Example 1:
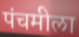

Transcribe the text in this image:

पंचमीला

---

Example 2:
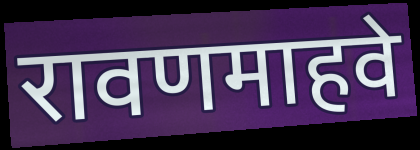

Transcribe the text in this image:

रावणमाहवे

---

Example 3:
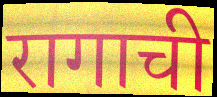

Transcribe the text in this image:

रागाची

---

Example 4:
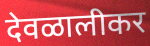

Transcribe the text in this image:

देवळालीकर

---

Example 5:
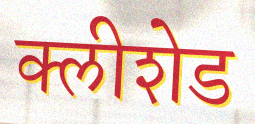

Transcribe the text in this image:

क्लीशेड